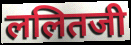
ललितजी